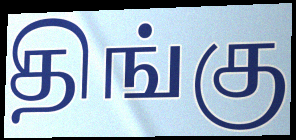
திங்கு